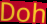
Doh